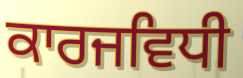
ਕਾਰਜਵਿਧੀ